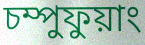
চম্পুফুয়াং